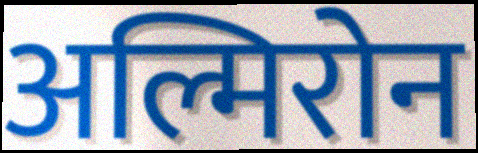
अल्मिरोन